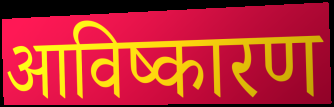
आविष्कारण